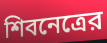
শিবনেত্রের